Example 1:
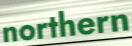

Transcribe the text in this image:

northern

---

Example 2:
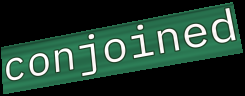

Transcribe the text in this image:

conjoined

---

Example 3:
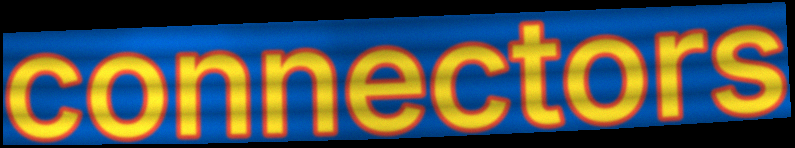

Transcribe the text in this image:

connectors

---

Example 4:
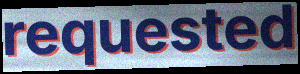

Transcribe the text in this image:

requested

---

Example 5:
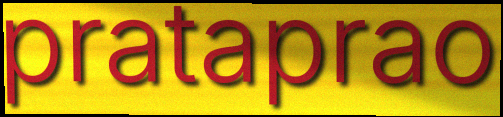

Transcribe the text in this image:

prataprao